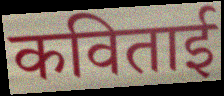
कविताई